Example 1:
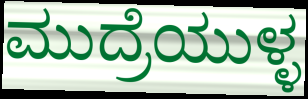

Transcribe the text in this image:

ಮುದ್ರೆಯುಳ್ಳ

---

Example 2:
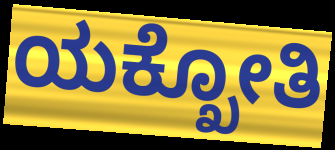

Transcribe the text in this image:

ಯಕ್ಖೋತಿ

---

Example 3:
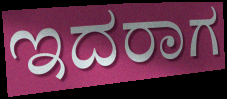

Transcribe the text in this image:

ಇದರಾಗ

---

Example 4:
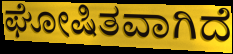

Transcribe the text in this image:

ಘೋಷಿತವಾಗಿದೆ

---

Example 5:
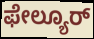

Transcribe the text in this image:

ಫೇಲ್ಯೂರ್